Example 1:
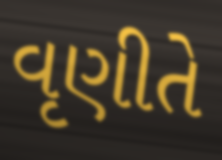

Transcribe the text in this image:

વૃણીતે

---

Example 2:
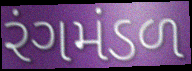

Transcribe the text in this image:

રંગમંડળ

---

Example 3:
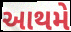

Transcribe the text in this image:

આથમે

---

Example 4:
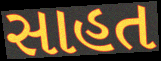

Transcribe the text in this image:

સાહત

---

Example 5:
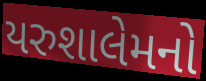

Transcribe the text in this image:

યરુશાલેમનો